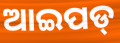
ଆଇପଡ୍